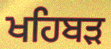
ਖਹਿਬੜ